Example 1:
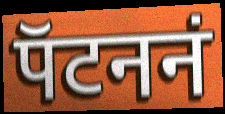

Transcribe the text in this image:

पॅटननं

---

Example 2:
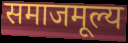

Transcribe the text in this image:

समाजमूल्य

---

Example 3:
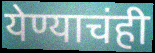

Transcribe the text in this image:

येण्याचंही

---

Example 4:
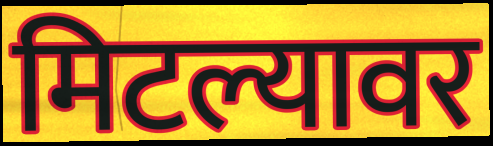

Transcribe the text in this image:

मिटल्यावर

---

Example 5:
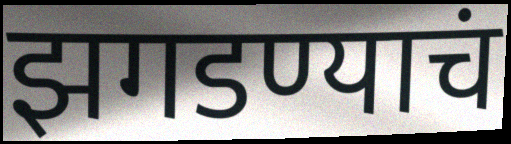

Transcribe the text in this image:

झगडण्याचं